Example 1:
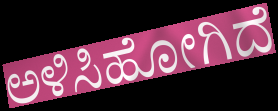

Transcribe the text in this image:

ಅಳಿಸಿಹೋಗಿದೆ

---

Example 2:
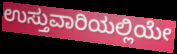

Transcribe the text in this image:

ಉಸ್ತುವಾರಿಯಲ್ಲಿಯೇ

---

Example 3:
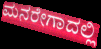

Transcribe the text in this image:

ಮನರೇಗಾದಲ್ಲಿ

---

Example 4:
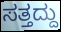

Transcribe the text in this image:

ಸತ್ತದ್ದು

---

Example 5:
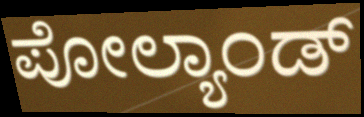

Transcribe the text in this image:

ಪೋಲ್ಯಾಂಡ್